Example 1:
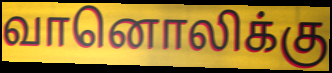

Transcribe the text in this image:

வானொலிக்கு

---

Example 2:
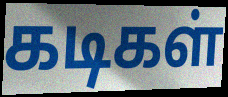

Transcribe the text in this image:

கடிகள்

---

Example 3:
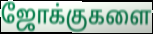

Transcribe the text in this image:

ஜோக்குகளை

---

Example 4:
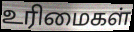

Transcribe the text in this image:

உரிமைகள்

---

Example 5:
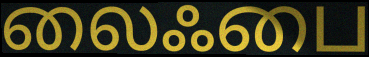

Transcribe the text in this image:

லைஃபை